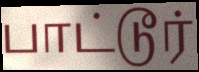
பாட்டூர்